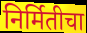
निर्मितीचा